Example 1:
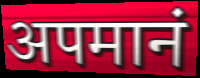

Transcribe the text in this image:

अपमानं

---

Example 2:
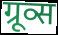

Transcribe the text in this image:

ग्रूव्स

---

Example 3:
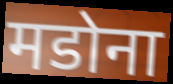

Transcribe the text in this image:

मडोना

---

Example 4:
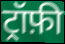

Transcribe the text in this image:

ट्रॉफ़ी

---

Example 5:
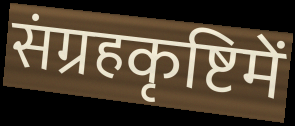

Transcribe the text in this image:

संग्रहकृष्टिमें